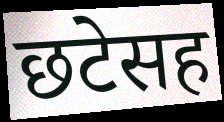
छटेसह